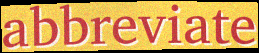
abbreviate